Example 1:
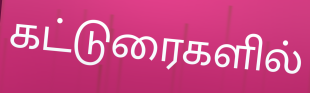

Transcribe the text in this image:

கட்டுரைகளில்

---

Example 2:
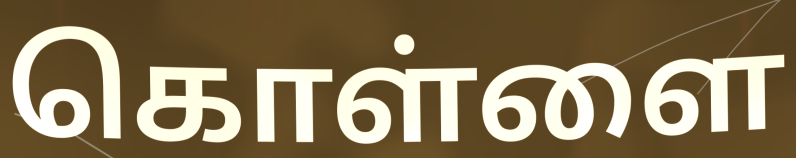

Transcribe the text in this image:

கொள்ளை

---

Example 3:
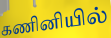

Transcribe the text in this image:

கணினியில்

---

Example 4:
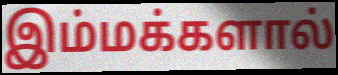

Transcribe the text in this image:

இம்மக்களால்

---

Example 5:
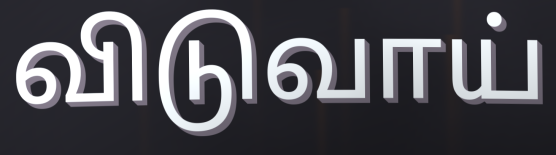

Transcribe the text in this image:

விடுவாய்